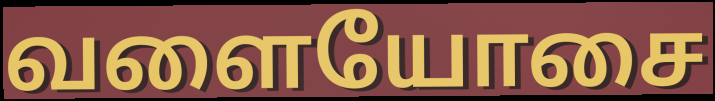
வளையோசை